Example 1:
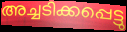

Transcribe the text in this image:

അച്ചടിക്കപ്പെട്ടു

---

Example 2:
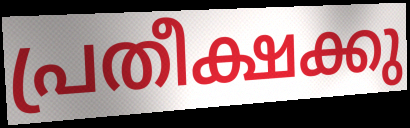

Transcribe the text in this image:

പ്രതീക്ഷക്കു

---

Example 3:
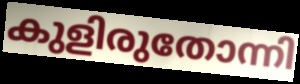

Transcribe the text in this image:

കുളിരുതോന്നി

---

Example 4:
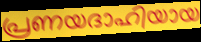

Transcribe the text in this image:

പ്രണയദാഹിയായ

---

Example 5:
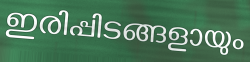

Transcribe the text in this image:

ഇരിപ്പിടങ്ങളായും